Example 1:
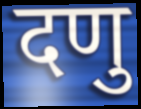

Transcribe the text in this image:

दणु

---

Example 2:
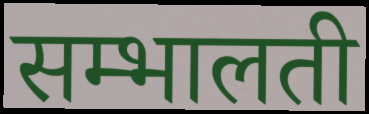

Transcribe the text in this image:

सम्भालती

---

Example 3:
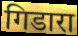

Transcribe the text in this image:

गिडारा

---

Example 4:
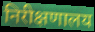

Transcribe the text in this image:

निरीक्षणालय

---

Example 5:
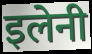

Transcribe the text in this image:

इलेनी